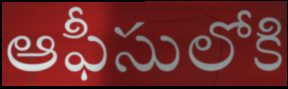
ఆఫీసులోకి